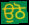
ਉਠੋ